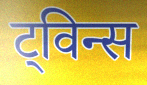
ट्विन्स